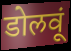
डोलवूं